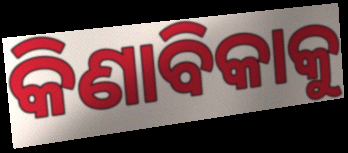
କିଣାବିକାକୁ